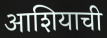
आशियाची